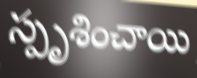
స్పృశించాయి